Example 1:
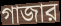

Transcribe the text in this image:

গাজার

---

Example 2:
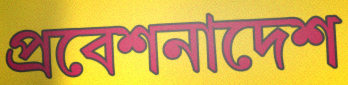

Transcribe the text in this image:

প্রবেশনাদেশ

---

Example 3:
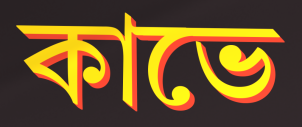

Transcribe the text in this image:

কাভে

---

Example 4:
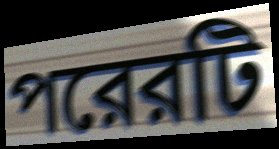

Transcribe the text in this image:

পরেরটি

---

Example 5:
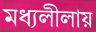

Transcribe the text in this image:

মধ্যলীলায়